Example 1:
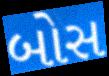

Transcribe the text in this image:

બોસ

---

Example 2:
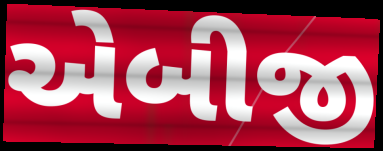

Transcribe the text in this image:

એબીજી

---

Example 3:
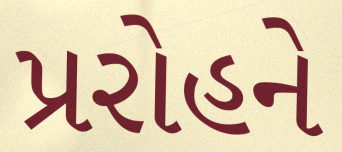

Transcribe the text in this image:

પ્રરોહને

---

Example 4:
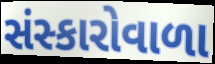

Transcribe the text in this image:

સંસ્કારોવાળા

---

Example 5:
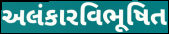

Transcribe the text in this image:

અલંકારવિભૂષિત